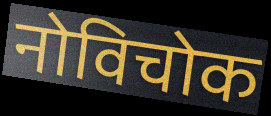
नोविचोक